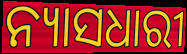
ନ୍ୟାସଧାରୀ